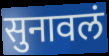
सुनावलं